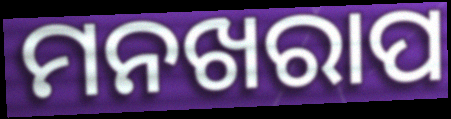
ମନଖରାପ